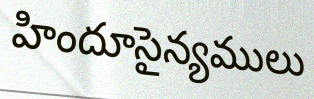
హిందూసైన్యములు